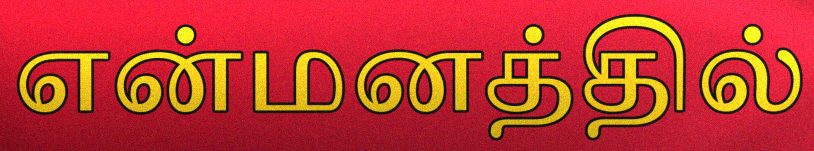
என்மனத்தில்